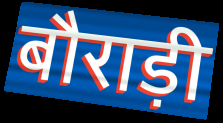
बौराड़ी